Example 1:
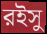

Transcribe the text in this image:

রইসু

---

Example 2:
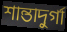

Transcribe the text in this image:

শান্তাদুর্গা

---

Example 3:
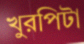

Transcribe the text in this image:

খুরপিটা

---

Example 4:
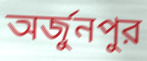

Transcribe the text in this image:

অর্জুনপুর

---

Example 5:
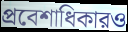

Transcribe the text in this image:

প্রবেশাধিকারও